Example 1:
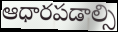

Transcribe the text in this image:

ఆధారపడాల్సి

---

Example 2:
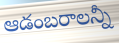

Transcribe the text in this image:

ఆడంబరాలన్నీ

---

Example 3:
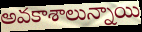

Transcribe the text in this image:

అవకాశాలున్నాయి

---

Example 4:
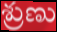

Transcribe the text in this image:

శ్రుణు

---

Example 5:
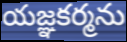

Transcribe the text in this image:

యజ్ఞకర్మను